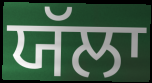
ਯੱਲਾ